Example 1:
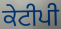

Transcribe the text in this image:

ਕੇਟੀਪੀ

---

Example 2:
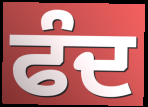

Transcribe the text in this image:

ਫੰਦ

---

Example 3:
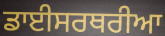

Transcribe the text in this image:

ਡਾਈਸਰਥਰੀਆ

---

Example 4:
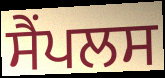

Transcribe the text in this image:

ਸੈਂਪਲਸ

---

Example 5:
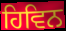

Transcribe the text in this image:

ਹਿਵਿਨ